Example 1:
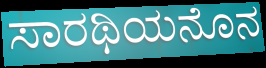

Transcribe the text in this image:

ಸಾರಥಿಯನೊನ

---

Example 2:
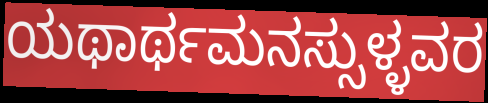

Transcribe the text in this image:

ಯಥಾರ್ಥಮನಸ್ಸುಳ್ಳವರ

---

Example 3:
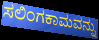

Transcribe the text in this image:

ಸಲಿಂಗಕಾಮವನ್ನು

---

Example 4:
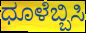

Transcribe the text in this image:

ಧೂಳೆಬ್ಬಿಸಿ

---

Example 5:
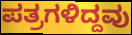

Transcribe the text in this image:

ಪತ್ರಗಳಿದ್ದವು